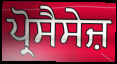
ਪ੍ਰੋਸੈਸੇਜ਼